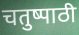
चतुष्पाठी